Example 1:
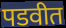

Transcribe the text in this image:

पडवीत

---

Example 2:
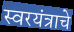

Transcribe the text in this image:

स्वरयंत्राचे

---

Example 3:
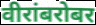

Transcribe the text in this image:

वीरांबरोबर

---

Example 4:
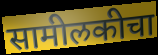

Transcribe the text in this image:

सामीलकीचा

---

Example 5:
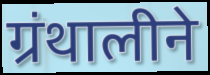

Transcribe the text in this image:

ग्रंथालीने